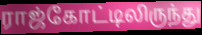
ராஜ்கோட்டிலிருந்து